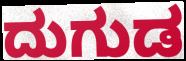
ದುಗುಡ